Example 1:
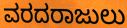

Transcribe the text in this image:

ವರದರಾಜುಲು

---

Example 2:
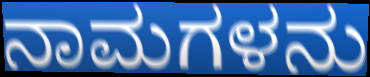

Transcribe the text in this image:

ನಾಮಗಳನು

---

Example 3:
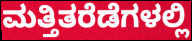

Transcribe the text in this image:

ಮತ್ತಿತರೆಡೆಗಳಲ್ಲಿ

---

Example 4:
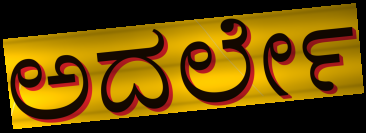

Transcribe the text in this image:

ಅದರ್ಲೇ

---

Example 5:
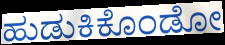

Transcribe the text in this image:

ಹುಡುಕಿಕೊಂಡೋ